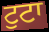
ਟੁਟਾ